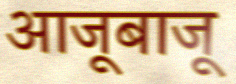
आजूबाजू